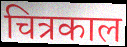
चित्रकाल